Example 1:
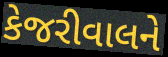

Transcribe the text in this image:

કેજરીવાલને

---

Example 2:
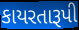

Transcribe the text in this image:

કાયરતારૂપી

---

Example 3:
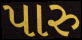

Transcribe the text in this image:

પારુ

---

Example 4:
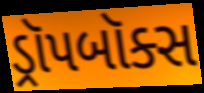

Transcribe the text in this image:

ડ્રૉપબૉક્સ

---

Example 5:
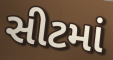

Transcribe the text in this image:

સીટમાં